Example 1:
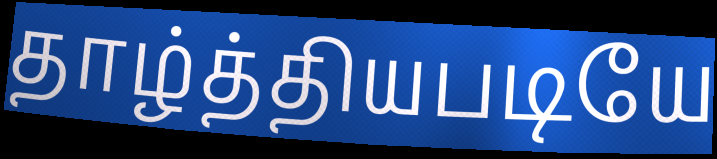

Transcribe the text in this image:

தாழ்த்தியபடியே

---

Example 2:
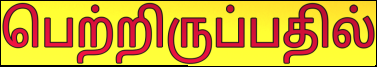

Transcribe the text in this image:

பெற்றிருப்பதில்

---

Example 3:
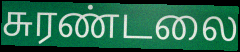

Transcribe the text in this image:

சுரண்டலை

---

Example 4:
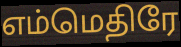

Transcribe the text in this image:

எம்மெதிரே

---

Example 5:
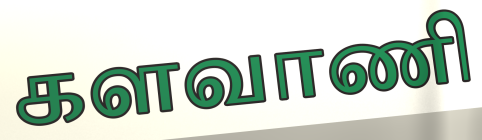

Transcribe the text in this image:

களவாணி